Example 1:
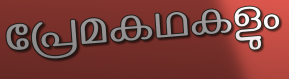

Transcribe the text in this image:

പ്രേമകഥകളും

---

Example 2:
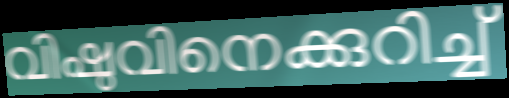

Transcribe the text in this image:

വിഷുവിനെക്കുറിച്ച്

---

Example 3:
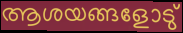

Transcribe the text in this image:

ആശയങ്ങളോടു്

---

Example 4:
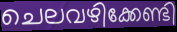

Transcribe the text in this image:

ചെലവഴിക്കേണ്ടി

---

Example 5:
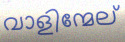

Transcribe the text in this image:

വാളിന്മേല്